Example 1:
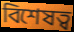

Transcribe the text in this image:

বিশেষত্ব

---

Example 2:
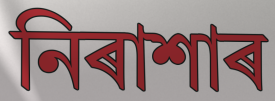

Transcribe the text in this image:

নিৰাশাৰ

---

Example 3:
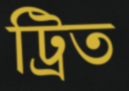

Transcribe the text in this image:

ট্ৰিত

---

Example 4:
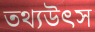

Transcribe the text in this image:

তথ্যউৎস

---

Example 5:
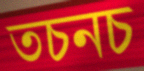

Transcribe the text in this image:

তচনচ